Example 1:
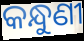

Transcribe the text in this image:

କନ୍ଧୁଣୀ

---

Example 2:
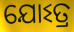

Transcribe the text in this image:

ଯୋଽତ୍ର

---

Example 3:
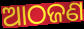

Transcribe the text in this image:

ଆଠଜଣ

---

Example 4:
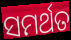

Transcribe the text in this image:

ସମର୍ଥତ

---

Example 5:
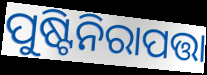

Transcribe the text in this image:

ପୁଷ୍ଟିନିରାପତ୍ତା